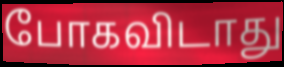
போகவிடாது